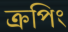
ক্রপিং